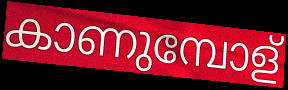
കാണുമ്പോള്